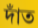
দাঁত